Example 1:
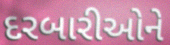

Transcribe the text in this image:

દરબારીઓને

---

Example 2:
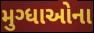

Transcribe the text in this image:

મુગ્ધાઓના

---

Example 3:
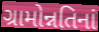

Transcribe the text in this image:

ગ્રામોન્નતિનાં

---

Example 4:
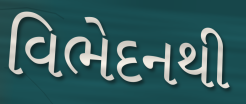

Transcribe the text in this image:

વિભેદનથી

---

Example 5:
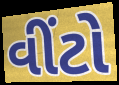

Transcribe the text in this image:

વીંટો